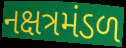
નક્ષત્રમંડળ